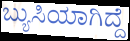
ಬ್ಯುಸಿಯಾಗಿದ್ದೆ